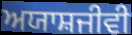
ਅਯਾਸ਼ਜੀਵੀ